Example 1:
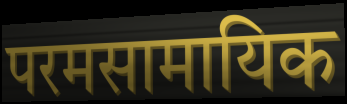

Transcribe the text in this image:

परमसामायिक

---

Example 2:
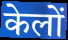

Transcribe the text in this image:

केलों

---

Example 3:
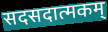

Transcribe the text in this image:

सदसदात्मकम्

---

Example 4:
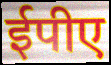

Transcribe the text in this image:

ईपीए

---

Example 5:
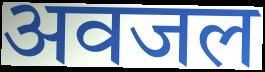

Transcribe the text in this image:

अवजल